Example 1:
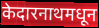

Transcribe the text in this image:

केदारनाथमधून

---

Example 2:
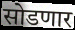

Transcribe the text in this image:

सोडणार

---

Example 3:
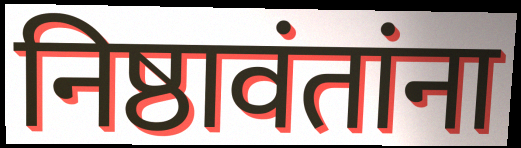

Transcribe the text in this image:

निष्ठावंतांना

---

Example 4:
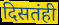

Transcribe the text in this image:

दिसतंही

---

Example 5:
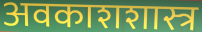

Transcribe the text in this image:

अवकाशशास्त्र